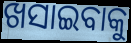
ଖସାଇବାକୁ